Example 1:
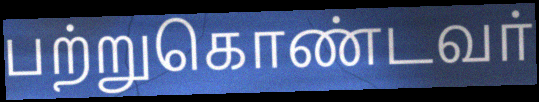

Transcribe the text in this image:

பற்றுகொண்டவர்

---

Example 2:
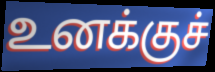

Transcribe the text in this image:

உனக்குச்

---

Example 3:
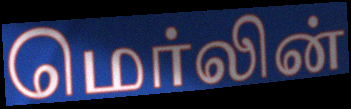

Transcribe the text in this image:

மெர்லின்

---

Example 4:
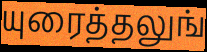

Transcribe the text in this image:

யுரைத்தலுங்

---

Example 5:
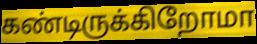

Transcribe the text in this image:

கண்டிருக்கிறோமா